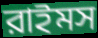
রাইমস